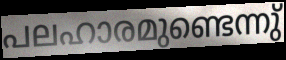
പലഹാരമുണ്ടെന്നു്